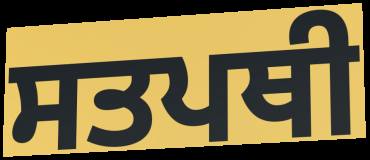
ਸਤਪਥੀ